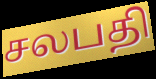
சலபதி